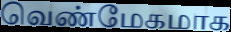
வெண்மேகமாக